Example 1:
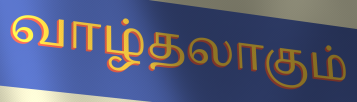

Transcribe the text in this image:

வாழ்தலாகும்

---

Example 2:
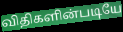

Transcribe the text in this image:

விதிகளின்படியே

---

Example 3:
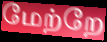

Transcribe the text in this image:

மேற்றே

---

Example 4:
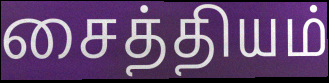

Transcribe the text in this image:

சைத்தியம்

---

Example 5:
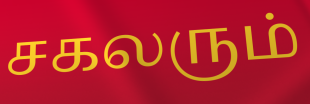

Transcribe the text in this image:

சகலரும்